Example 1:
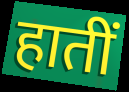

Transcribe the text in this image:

हातीं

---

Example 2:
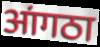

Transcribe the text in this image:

आंगठा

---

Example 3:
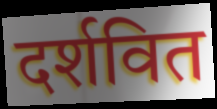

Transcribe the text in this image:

दर्शवित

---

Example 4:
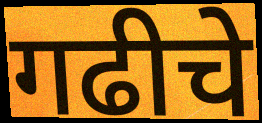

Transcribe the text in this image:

गढीचे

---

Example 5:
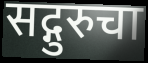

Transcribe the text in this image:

सद्गुरुचा